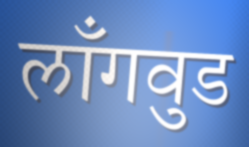
लाँगवुड